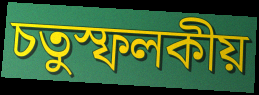
চতুস্ফলকীয়